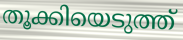
തൂക്കിയെടുത്ത്